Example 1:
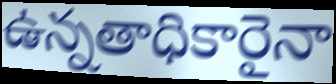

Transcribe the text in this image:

ఉన్నతాధికారైనా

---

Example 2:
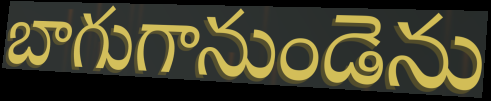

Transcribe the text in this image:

బాగుగానుండెను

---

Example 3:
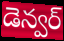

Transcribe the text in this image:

డెన్వర్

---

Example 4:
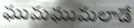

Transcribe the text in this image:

ఘుమఘుమలాడే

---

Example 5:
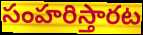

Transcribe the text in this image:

సంహరిస్తారట